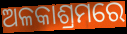
ଅଳକାଶ୍ରମରେ